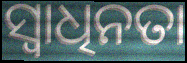
ସ୍ଵାଧିନତା